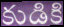
కుడికి